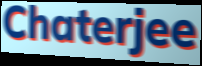
Chaterjee